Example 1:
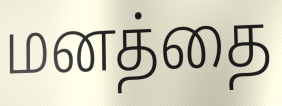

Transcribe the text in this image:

மனத்தை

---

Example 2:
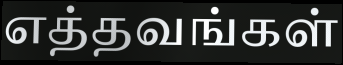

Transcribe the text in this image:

எத்தவங்கள்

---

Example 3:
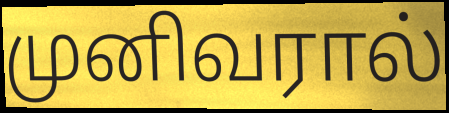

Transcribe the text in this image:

முனிவரால்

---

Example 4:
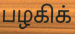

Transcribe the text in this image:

பழகிக்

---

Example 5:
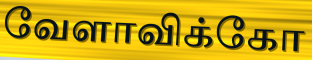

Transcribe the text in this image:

வேளாவிக்கோ